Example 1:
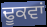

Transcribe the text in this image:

ਢੂਕਵਾਂ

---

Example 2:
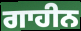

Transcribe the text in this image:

ਗਾਹੀਨ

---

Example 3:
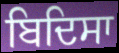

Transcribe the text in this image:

ਬਿਦਿਸਾ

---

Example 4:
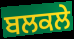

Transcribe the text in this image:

ਬਲਕਲੇ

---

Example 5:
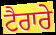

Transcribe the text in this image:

ਟੈਰਾਰੇ